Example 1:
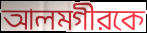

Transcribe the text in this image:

আলমগীরকে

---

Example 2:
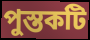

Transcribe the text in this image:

পুস্তকটি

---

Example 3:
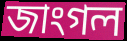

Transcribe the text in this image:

জাংগল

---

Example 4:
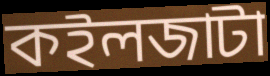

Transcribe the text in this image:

কইলজাটা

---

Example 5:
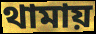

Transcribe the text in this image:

থামায়